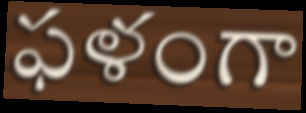
ఫళంగా